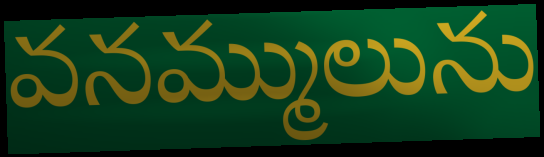
వనమ్ములును